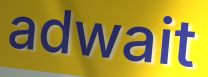
adwait